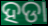
ହଡା